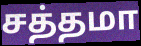
சத்தமா